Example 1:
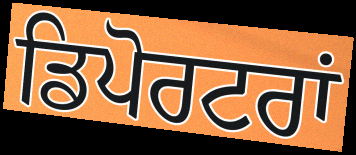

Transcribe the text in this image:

ਡਿਪੋਰਟਰਾਂ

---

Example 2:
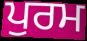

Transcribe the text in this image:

ਪੁਰਮ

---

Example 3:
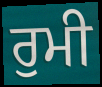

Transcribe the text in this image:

ਰੁਮੀ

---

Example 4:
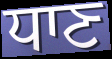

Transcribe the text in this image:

ਧਾਣ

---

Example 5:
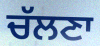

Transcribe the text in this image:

ਚੱਲਣਾ